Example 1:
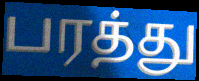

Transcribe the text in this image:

பரத்து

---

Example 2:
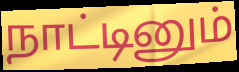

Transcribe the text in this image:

நாட்டினும்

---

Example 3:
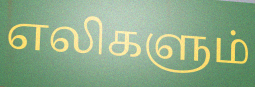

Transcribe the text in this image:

எலிகளும்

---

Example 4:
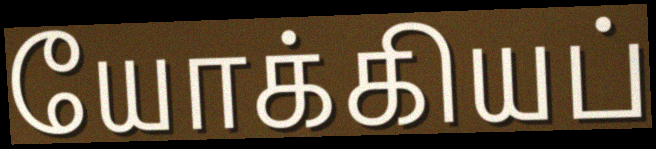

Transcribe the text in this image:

யோக்கியப்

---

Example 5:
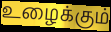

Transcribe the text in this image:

உழைக்கும்